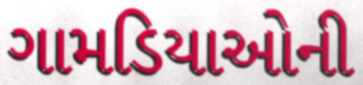
ગામડિયાઓની